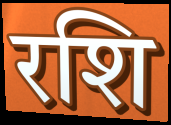
रशि